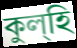
কুল্হি